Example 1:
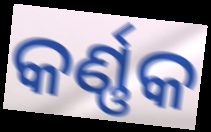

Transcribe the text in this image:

କର୍ଣ୍ଣକ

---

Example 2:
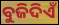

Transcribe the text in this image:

ବୁଜିଦିଏଁ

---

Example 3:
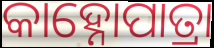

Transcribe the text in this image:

କାହ୍ନୋପାତ୍ରା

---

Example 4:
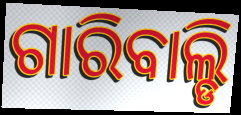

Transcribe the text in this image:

ଗାରିବାଲ୍ଡି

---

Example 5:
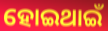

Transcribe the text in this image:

ହୋଇଥାଇଁ